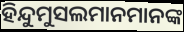
ହିନ୍ଦୁମୁସଲମାନମାନଙ୍କ